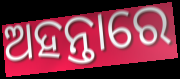
ଅହନ୍ତାରେ